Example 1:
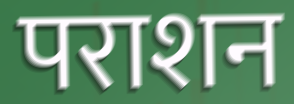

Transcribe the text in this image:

पराशन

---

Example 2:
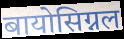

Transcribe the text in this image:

बायोसिग्नल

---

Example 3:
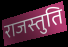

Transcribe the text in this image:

राजस्तुति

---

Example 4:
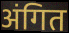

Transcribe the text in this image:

अंगित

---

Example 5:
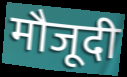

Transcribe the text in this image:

मौजूदी